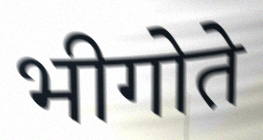
भीगोते